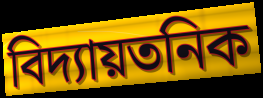
বিদ্যায়তনিক